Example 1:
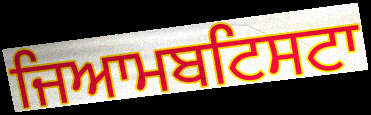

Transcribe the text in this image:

ਜਿਆਮਬਟਿਸਟਾ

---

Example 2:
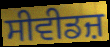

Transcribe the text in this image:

ਸੀਵੀਡਜ਼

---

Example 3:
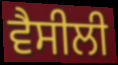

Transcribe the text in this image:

ਵੈਸੀਲੀ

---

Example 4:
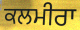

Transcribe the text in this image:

ਕਲਮੀਰਾ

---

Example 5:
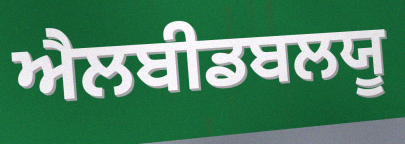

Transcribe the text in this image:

ਐਲਬੀਡਬਲਯੂ